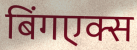
बिंगएक्स